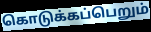
கொடுக்கப்பெறும்